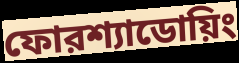
ফোরশ্যাডোয়িং